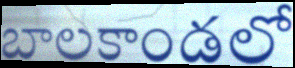
బాలకాండలో